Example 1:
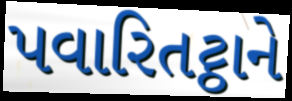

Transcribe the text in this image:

પવારિતટ્ઠાને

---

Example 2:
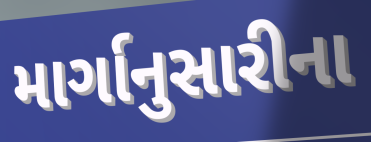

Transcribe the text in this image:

માર્ગાનુસારીના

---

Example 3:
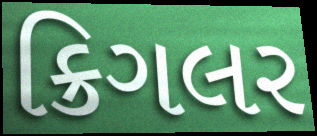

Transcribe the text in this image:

ક્રિગલર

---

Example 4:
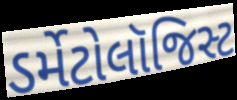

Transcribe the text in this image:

ડર્મેટોલૉજિસ્ટ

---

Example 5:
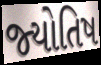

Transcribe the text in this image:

જ્‍યોતિષ